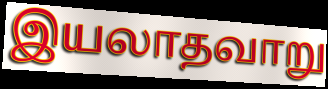
இயலாதவாறு